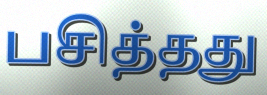
பசித்தது